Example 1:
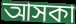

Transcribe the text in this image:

আসকা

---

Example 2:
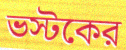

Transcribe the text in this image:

ভস্টকের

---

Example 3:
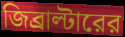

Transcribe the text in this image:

জিব্রাল্টারের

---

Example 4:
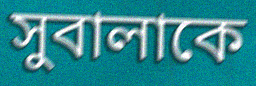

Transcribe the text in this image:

সুবালাকে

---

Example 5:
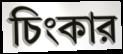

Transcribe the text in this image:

চিংকার